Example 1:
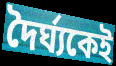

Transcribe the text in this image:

দৈর্ঘ্যকেই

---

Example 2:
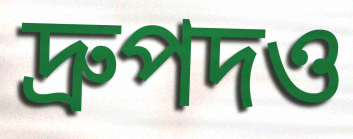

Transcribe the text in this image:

দ্রুপদও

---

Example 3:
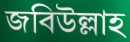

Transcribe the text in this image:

জবিউল্লাহ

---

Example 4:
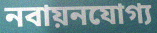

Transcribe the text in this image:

নবায়নযোগ্য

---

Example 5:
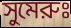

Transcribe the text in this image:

সুমেরুঃ